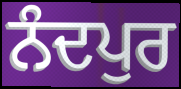
ਨੰਦਪੁਰ